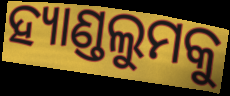
ହ୍ୟାଣ୍ଡଲୁମକୁ